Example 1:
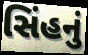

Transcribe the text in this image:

સિંહનું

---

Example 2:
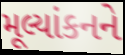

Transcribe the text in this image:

મૂલ્યાંકનને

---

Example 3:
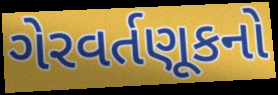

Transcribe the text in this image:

ગેરવર્તણૂકનો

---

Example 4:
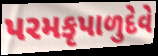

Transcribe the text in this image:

પરમકૃપાળુદેવે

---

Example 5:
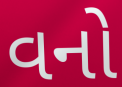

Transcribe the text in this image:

વનો